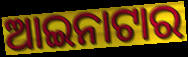
ଆଇନାଟାର